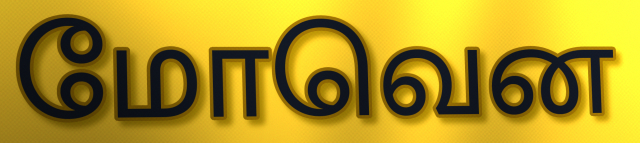
மோவென